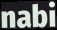
nabi